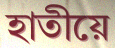
হাতীয়ে